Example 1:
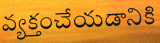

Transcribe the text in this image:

వ్యక్తంచేయడానికి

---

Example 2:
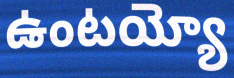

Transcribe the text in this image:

ఉంటయ్యో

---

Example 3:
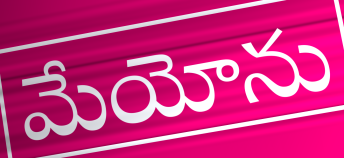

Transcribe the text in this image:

మేయోను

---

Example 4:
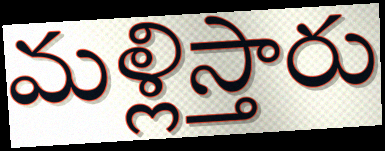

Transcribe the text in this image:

మళ్లిస్తారు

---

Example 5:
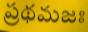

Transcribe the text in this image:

ప్రథమజః